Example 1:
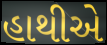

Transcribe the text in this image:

હાથીએ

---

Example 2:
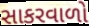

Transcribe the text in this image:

સાકરવાળો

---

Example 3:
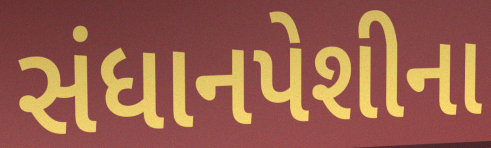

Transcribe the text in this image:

સંધાનપેશીના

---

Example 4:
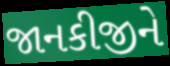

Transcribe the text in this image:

જાનકીજીને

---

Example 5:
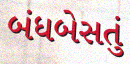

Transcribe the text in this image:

બંધબેસતું